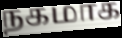
நகமாக